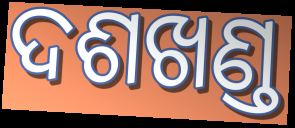
ଦଶଖଣ୍ଡ